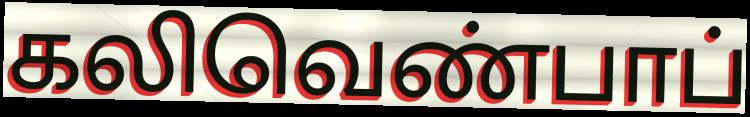
கலிவெண்பாப்